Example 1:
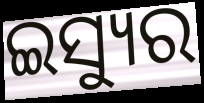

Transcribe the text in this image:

ଇସ୍ୟୁର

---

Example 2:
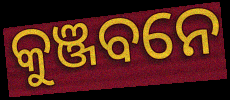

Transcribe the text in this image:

କୁଞ୍ଜବନେ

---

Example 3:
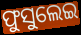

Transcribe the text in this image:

ଫୁସୁଲେଇ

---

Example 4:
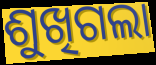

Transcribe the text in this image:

ଶୁଖିଗଲା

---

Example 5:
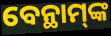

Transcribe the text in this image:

ବେନ୍ଥାମ୍‌ଙ୍କ